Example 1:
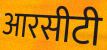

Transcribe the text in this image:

आरसीटी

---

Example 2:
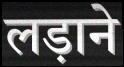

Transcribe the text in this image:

लड़ाने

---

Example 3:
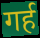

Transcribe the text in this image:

गर्ह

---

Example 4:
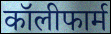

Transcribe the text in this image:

कॉलीफार्म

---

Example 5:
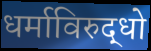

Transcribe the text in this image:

धर्माविरुद्धो